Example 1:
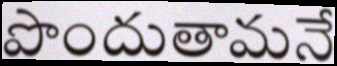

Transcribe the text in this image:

పొందుతామనే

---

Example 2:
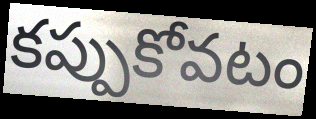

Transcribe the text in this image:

కప్పుకోవటం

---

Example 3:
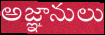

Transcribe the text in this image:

అజ్ఞానులు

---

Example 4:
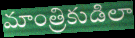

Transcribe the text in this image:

మాంత్రికుడిలా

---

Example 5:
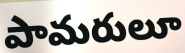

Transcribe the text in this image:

పామరులూ